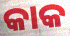
କାକ